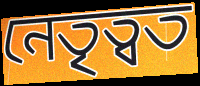
নেতৃত্বত